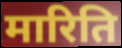
मारिति